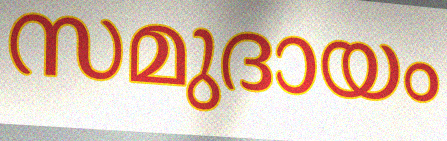
സമുദായം